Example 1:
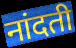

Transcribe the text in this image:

नांदती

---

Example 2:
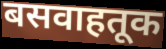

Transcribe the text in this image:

बसवाहतूक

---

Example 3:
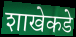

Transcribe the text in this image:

शाखेकडे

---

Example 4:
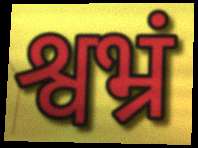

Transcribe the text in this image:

श्वभ्रं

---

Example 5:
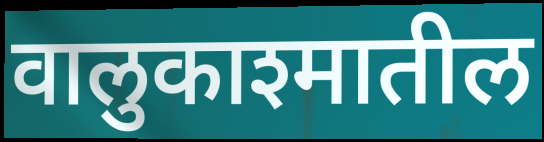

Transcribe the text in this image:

वालुकाश्मातील